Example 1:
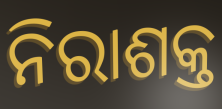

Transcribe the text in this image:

ନିରାଶକ୍ତ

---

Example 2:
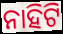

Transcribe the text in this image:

ନାହିଟି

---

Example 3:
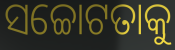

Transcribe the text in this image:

ସଚ୍ଚୋଟତାକୁ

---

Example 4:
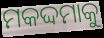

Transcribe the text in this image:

ମକଦ୍ଦମାକୁ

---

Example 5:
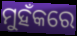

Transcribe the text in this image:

ମୁହଁକରେ